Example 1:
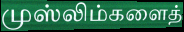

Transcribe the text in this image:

முஸ்லிம்களைத்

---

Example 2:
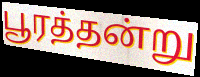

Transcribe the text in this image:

பூரத்தன்று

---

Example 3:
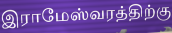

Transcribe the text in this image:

இராமேஸ்வரத்திற்கு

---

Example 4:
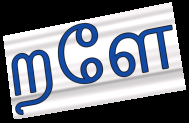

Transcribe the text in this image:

றளே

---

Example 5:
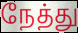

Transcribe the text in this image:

நேத்து